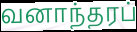
வனாந்தரப்